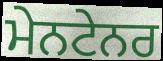
ਮੇਨਟੇਨਰ